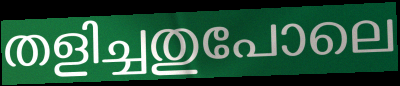
തളിച്ചതുപോലെ